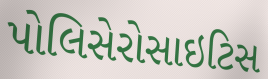
પોલિસેરોસાઇટિસ